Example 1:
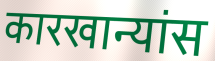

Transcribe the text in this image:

कारखान्यांस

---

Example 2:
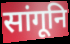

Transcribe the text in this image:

सांगूनि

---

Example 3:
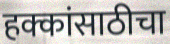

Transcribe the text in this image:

हक्कांसाठीचा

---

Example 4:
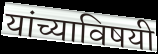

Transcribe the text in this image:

यांच्याविषयी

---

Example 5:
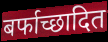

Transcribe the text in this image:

बर्फाच्छादित